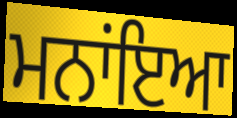
ਮਨਾਂਇਆ